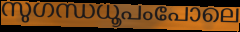
സുഗന്ധധൂപംപോലെ